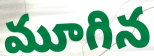
మూగిన